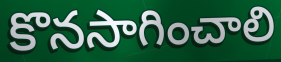
కొనసాగించాలి